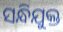
ସନ୍ଧିଯୁକ୍ତ